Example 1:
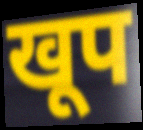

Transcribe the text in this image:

खूप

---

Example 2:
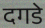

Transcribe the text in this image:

दगडे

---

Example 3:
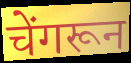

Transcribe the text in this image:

चेंगरून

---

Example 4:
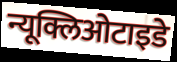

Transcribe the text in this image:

न्यूक्लिओटाइडे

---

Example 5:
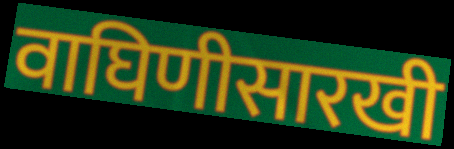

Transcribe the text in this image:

वाघिणीसारखी